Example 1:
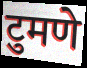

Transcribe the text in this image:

टुमणे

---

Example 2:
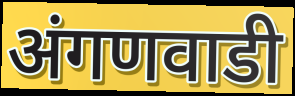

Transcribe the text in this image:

अंगणवाडी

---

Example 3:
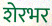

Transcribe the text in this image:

शेरभर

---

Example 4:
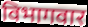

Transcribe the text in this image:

विभागवार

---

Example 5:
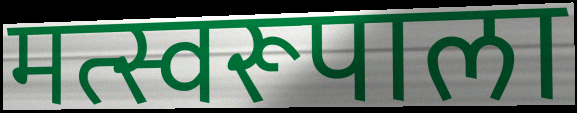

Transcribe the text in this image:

मत्स्वरूपाला